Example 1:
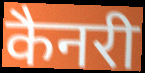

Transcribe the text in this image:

कैनरी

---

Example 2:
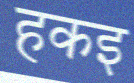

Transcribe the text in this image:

हकइ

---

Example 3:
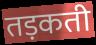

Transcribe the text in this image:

तड़कती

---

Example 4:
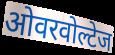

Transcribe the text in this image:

ओवरवोल्टेज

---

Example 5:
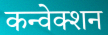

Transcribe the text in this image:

कन्वेक्शन